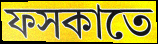
ফসকাতে